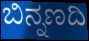
ಬಿನ್ನಣದಿ